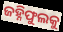
ଜହ୍ନିଫୁଲକୁ